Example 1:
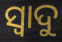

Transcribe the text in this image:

ସ୍ଵାଦୁ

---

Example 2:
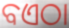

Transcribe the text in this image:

ବଏଠା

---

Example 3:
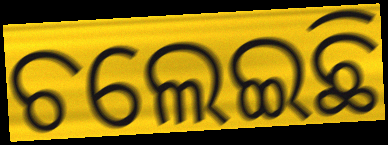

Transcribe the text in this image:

ଚଲେଇଛି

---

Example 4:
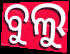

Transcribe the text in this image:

ବୁଲୁ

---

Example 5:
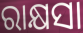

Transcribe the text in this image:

ରାକ୍ଷସା